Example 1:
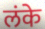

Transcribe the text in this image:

लंके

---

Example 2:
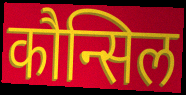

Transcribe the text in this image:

कौन्सिल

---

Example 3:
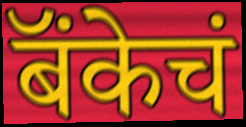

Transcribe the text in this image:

बॅंकेचं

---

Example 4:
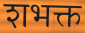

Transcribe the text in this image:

शभक्त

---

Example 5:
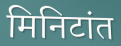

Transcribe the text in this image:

मिनिटांत